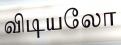
விடியலோ